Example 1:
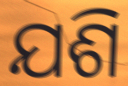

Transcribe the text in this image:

ଯଶି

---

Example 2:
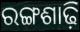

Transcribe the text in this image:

ରଙ୍ଗଶାଢ଼ି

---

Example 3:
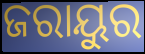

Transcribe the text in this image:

ଜରାୟୁର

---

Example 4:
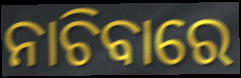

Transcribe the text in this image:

ନାଚିବାରେ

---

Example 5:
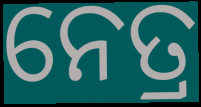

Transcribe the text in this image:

ନେତ୍ର